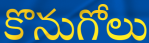
కొనుగోలు